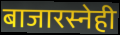
बाजारस्नेही